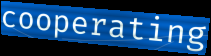
cooperating